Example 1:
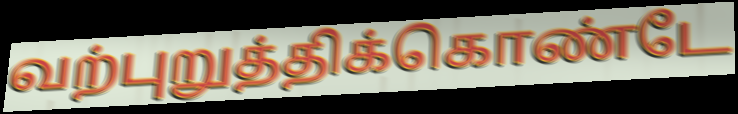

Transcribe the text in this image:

வற்புறுத்திக்கொண்டே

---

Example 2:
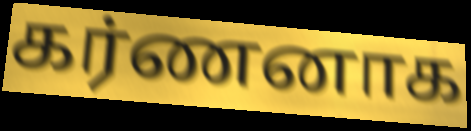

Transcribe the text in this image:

கர்ணனாக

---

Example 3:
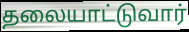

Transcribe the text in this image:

தலையாட்டுவார்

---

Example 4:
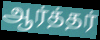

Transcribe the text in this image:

ஆர்த்தர்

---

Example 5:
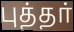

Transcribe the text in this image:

புத்தர்